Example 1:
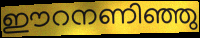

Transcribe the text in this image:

ഈറനണിഞ്ഞു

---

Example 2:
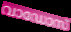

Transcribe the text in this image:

വാഡോസ്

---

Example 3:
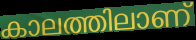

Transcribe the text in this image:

കാലത്തിലാണ്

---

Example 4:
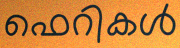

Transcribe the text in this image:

ഫെറികൾ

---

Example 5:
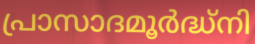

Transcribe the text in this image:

പ്രാസാദമൂർദ്ധ്നി